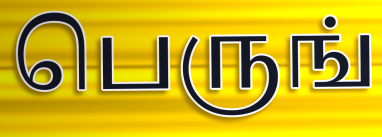
பெருங்